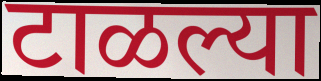
टाळल्या